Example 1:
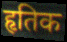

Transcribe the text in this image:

हृतिक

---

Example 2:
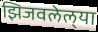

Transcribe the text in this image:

झिजवलेल्या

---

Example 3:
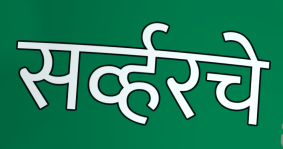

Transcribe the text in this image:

सर्व्हरचे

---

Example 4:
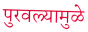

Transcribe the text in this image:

पुरवल्यामुळे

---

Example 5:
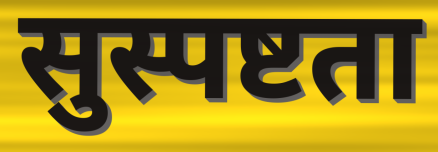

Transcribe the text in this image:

सुस्पष्टता